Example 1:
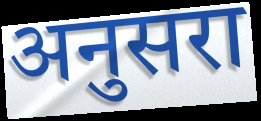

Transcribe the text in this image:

अनुसरा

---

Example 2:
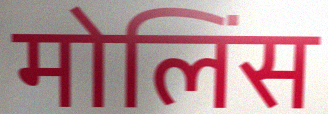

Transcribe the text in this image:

मोलिंस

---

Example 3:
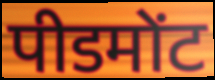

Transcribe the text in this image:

पीडमोंट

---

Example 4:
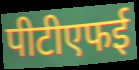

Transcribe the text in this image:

पीटीएफई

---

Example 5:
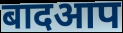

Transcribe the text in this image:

बादआप